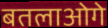
बतलाओगे